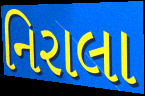
નિરાલા